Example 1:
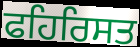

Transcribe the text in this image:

ਫਹਿਰਿਸਤ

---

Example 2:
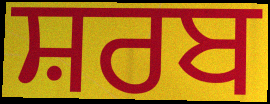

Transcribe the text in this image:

ਸ਼ਰਬ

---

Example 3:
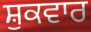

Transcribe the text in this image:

ਸ਼ੁਕਵਾਰ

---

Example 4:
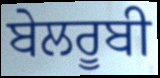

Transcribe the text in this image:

ਬੇਲਰੂਬੀ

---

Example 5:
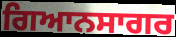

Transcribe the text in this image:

ਗਿਆਨਸਾਗਰ